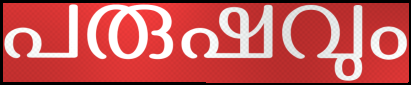
പരുഷവും